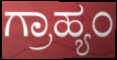
ಗ್ರಾಹ್ಯಂ